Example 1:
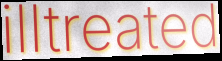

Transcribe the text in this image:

illtreated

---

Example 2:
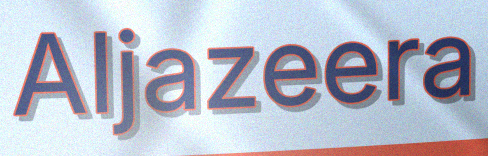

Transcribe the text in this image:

Aljazeera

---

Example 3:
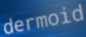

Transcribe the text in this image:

dermoid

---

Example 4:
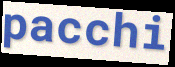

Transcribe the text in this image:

pacchi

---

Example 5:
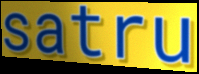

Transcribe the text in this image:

satru